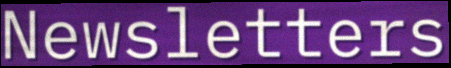
Newsletters